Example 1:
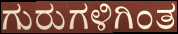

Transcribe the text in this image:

ಗುರುಗಳಿಗಿಂತ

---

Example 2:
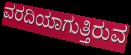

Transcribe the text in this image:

ವರದಿಯಾಗುತ್ತಿರುವ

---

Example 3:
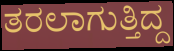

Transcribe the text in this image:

ತರಲಾಗುತ್ತಿದ್ದ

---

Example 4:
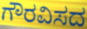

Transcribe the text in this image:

ಗೌರವಿಸದ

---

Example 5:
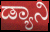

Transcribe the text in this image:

ಡ್ಯಾನಿ